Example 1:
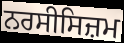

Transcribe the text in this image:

ਨਰਸੀਸਿਜ਼ਮ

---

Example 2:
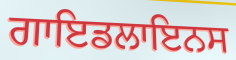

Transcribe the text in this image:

ਗਾਇਡਲਾਇਨਸ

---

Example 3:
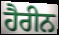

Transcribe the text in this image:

ਹੈਰੀਨ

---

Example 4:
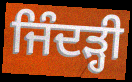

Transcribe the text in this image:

ਜਿੰਦੜ੍ਹੀ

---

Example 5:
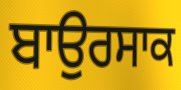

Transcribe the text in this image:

ਬਾਉਰਸਾਕ